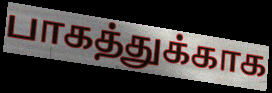
பாகத்துக்காக